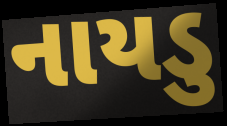
નાયડુ